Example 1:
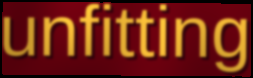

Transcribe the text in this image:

unfitting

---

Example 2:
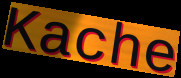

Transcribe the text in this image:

Kache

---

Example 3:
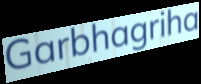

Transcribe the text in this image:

Garbhagriha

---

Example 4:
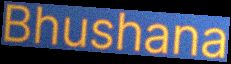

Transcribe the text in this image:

Bhushana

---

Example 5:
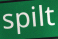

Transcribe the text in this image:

spilt